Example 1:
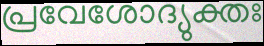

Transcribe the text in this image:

പ്രവേശോദ്യുക്തഃ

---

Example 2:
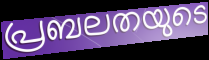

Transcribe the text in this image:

പ്രബലതയുടെ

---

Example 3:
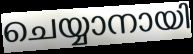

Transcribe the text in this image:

ചെയ്യാനായി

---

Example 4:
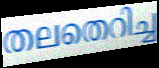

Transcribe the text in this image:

തലതെറിച്ച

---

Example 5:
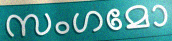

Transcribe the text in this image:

സംഗമോ